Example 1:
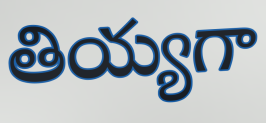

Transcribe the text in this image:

తియ్యగా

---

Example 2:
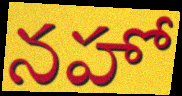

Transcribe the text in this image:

నహో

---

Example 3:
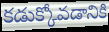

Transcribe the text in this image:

కడుక్కోవడానికి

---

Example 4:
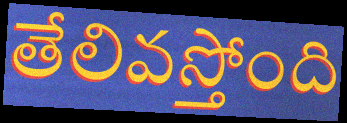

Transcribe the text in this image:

తేలివస్తోంది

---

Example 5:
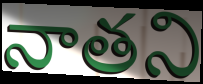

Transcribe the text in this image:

నాతని